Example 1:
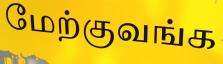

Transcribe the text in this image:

மேற்குவங்க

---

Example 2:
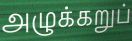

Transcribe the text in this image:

அழுக்கறுப்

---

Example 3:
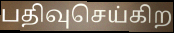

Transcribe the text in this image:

பதிவுசெய்கிற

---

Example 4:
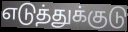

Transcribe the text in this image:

எடுத்துக்குடு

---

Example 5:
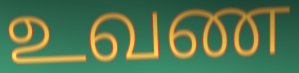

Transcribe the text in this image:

உவண